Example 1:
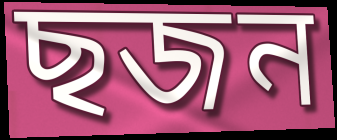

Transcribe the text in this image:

ছজন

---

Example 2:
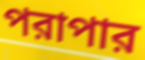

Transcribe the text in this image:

পরাপার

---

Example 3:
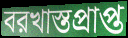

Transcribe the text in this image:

বরখাস্তপ্রাপ্ত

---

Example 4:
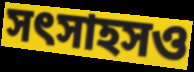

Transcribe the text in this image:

সৎসাহসও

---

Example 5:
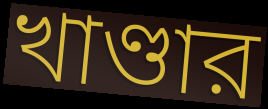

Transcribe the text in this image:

খাণ্ডার